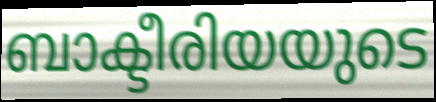
ബാക്ടീരിയയുടെ